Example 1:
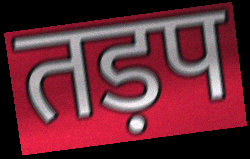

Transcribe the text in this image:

तड़प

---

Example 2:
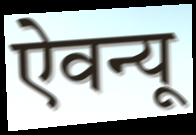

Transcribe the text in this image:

ऐवन्यू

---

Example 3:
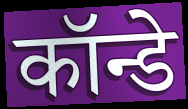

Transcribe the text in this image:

कॉन्डे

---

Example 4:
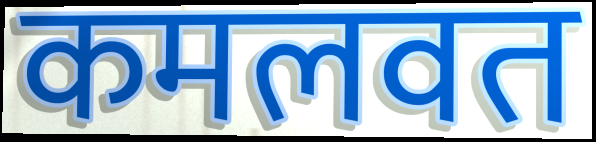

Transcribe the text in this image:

कमलवत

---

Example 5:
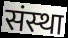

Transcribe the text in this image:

संस्‍था